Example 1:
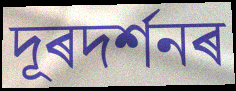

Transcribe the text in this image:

দূৰদৰ্শনৰ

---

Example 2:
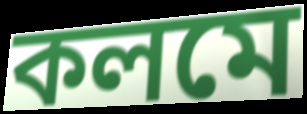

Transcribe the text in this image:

কলমে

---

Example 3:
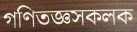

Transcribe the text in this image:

গণিতজ্ঞসকলক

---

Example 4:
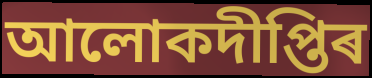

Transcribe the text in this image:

আলোকদীপ্তিৰ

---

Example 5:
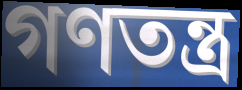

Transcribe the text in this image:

গণতন্ত্ৰ